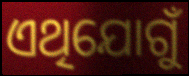
ଏଥିଯୋଗୁଁ